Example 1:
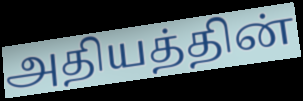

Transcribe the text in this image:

அதியத்தின்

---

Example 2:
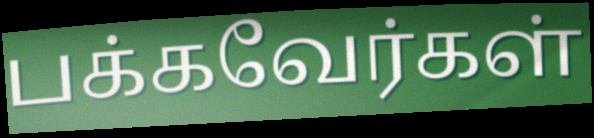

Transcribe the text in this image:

பக்கவேர்கள்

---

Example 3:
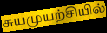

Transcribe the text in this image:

சுயமுயற்சியில்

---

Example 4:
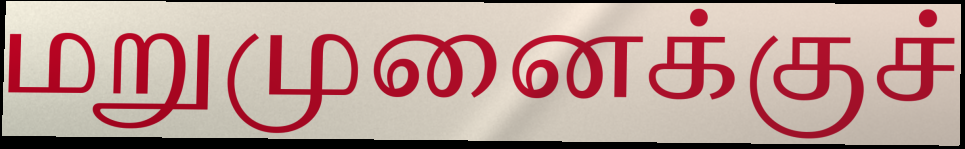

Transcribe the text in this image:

மறுமுனைக்குச்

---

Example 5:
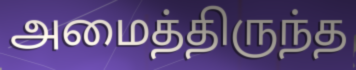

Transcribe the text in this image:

அமைத்திருந்த